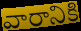
వారానికి